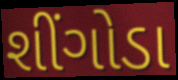
શીંગોડા